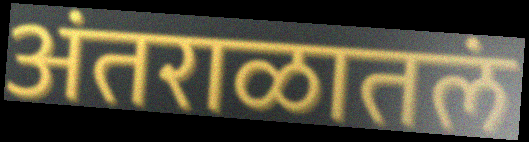
अंतराळातलं